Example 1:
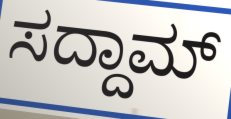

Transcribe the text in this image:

ಸದ್ದಾಮ್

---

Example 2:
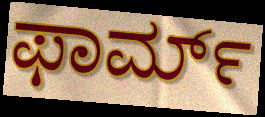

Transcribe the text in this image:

ಫಾರ್ಮ್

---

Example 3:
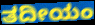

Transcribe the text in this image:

ತದೀಯಂ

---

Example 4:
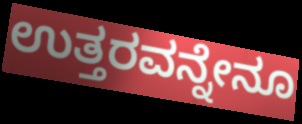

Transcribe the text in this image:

ಉತ್ತರವನ್ನೇನೂ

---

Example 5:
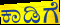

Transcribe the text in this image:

ಕಾಡಿಗೆ